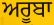
ਅਰੂਬਾ